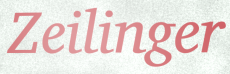
Zeilinger